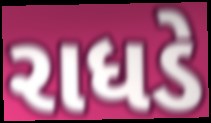
રાધડે